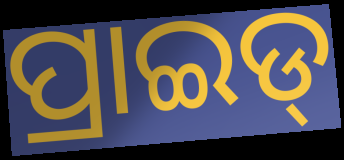
ପ୍ରାଇଡ୍